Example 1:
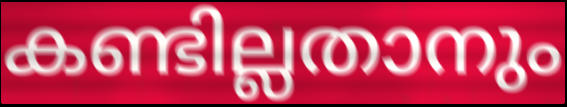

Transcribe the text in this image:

കണ്ടില്ലതാനും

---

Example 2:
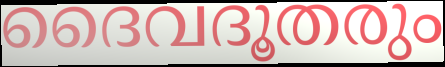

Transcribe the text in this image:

ദൈവദൂതരും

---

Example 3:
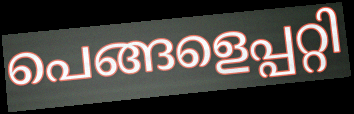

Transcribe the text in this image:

പെങ്ങളെപ്പറ്റി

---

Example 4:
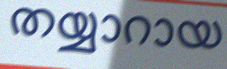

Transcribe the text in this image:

തയ്യാറായ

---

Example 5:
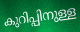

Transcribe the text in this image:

കുറിപ്പിനുള്ള